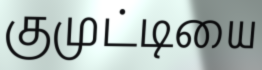
குமுட்டியை